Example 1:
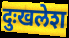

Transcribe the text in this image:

दुःखलेश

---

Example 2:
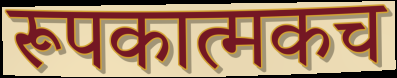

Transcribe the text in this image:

रूपकात्मकच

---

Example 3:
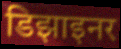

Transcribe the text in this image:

डिझाइनर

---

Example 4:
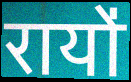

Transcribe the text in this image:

रायो॑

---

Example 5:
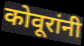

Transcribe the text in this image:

कोवूरांनी